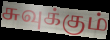
சுவுக்கும்